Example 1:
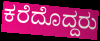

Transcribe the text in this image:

ಕರೆದೊದ್ದರು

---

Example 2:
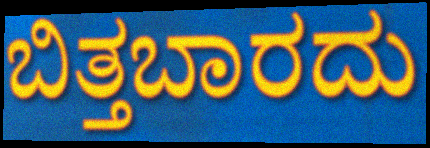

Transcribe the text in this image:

ಬಿತ್ತಬಾರದು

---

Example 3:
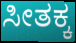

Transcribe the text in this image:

ಸೀತಕ್ಕ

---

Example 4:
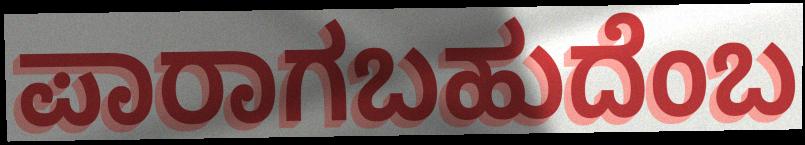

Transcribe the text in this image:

ಪಾರಾಗಬಹುದೆಂಬ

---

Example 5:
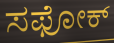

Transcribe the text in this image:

ಸಫೋಕ್